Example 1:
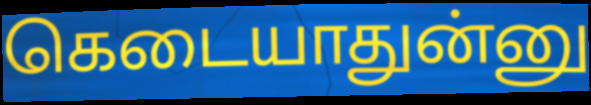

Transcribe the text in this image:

கெடையாதுன்னு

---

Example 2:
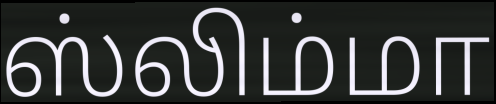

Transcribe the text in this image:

ஸ்லிம்மா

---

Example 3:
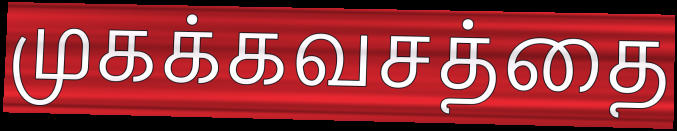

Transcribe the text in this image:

முகக்கவசத்தை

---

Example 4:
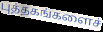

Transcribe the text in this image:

புத்தகங்களைச்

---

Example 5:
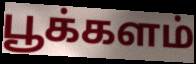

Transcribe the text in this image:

பூக்களம்